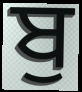
ਬੁ